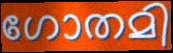
ഗോതമി